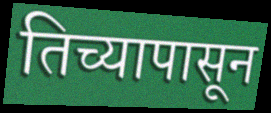
तिच्यापासून